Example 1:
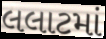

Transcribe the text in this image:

લલાટમાં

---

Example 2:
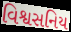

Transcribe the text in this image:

વિશ્વસનિય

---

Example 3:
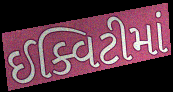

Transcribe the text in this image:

ઈક્વિટીમાં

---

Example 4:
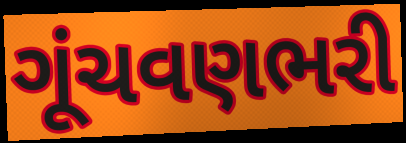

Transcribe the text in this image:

ગૂંચવણભરી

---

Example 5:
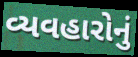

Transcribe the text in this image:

વ્યવહારોનું